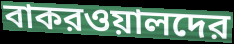
বাকরওয়ালদের